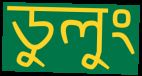
ডুলুং